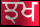
ਝਖ